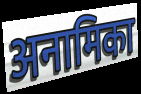
अनामिका